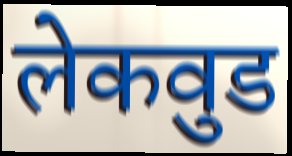
लेकवुड